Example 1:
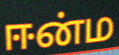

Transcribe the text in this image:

ஈன்ம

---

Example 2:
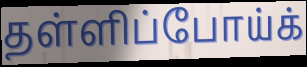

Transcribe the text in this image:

தள்ளிப்போய்க்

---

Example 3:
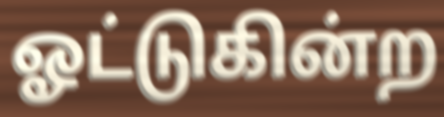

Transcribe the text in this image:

ஓட்டுகின்ற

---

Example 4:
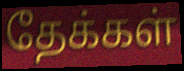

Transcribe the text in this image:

தேக்கள்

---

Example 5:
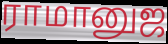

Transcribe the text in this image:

ராமானுஜ